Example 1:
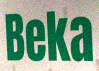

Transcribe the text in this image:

Beka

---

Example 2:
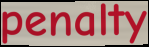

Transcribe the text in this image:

penalty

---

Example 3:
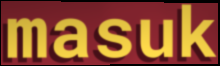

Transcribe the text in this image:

masuk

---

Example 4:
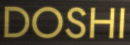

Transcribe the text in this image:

DOSHI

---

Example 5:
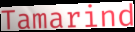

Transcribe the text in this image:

Tamarind